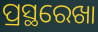
ପ୍ରସ୍ଥରେଖା